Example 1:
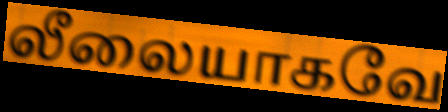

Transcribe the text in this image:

லீலையாகவே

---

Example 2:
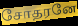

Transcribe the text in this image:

சோதரனே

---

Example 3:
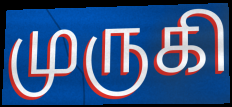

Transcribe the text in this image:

முருகி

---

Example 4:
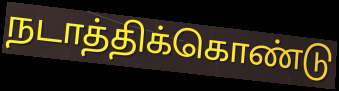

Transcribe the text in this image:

நடாத்திக்கொண்டு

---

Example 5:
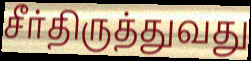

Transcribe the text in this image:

சீர்திருத்துவது